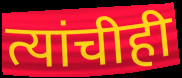
त्यांचीही